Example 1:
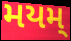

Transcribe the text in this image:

મયમ્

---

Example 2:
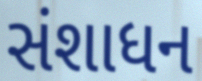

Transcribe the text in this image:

સંશાધન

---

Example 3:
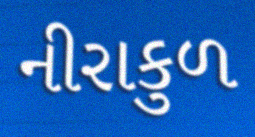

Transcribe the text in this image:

નીરાકુળ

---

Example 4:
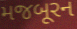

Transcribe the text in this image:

મજબૂરન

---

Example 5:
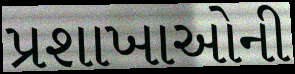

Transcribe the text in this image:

પ્રશાખાઓની